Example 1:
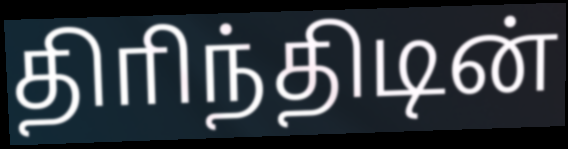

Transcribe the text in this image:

திரிந்திடின்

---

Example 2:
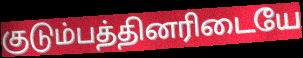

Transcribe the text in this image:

குடும்பத்தினரிடையே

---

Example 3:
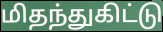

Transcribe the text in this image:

மிதந்துகிட்டு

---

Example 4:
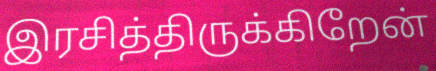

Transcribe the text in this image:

இரசித்திருக்கிறேன்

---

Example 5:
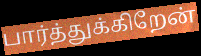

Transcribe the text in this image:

பார்த்துக்கிறேன்